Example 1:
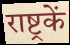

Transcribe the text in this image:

राष्ट्रकें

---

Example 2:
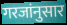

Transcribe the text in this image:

गरजांनुसार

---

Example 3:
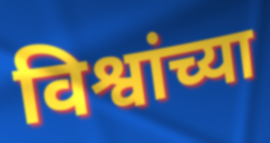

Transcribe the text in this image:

विश्वांच्या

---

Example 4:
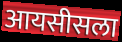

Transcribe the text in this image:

आयसीसला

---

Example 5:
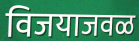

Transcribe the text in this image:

विजयाजवळ